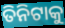
ତିନିଟାକୁ